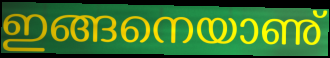
ഇങ്ങനെയാണു്